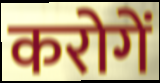
करोगें